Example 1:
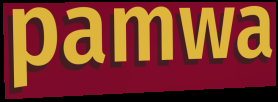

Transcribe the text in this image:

pamwa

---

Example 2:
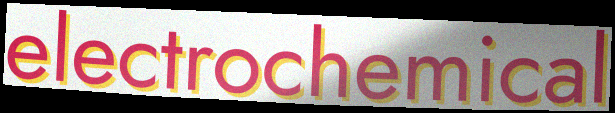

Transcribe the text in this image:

electrochemical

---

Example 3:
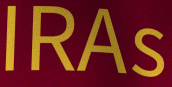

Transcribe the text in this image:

IRAs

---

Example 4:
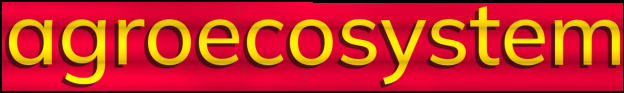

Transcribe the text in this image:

agroecosystem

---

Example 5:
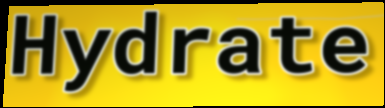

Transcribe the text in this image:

Hydrate